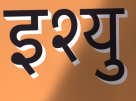
इश्यु